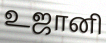
உஜானி